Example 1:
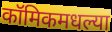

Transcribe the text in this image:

कॉमिकमधल्या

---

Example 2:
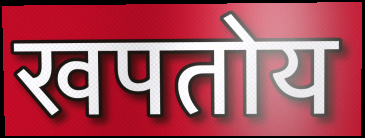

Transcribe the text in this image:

खपतोय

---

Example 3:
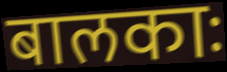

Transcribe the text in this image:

बालकाः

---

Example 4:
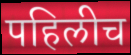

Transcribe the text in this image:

पहिलीच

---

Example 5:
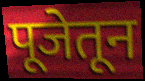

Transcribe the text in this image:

पूजेतून